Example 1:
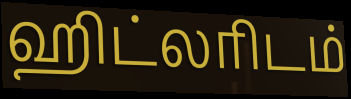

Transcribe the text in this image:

ஹிட்லரிடம்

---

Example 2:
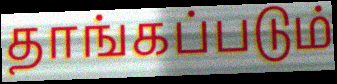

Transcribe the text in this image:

தாங்கப்படும்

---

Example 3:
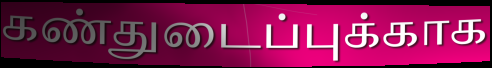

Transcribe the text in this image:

கண்துடைப்புக்காக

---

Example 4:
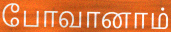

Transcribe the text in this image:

போவானாம்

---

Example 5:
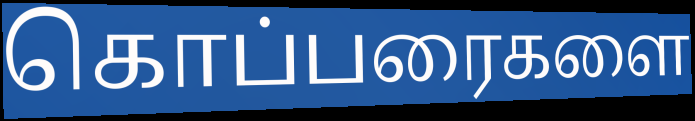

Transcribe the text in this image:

கொப்பரைகளை